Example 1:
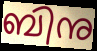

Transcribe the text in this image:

ബിനു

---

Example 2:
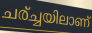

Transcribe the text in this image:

ചര്ച്ചയിലാണ്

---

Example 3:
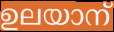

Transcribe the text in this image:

ഉലയാന്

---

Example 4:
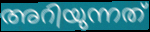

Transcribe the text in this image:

അറിയുന്നത്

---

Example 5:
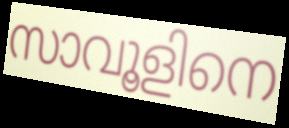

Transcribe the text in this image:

സാവൂളിനെ